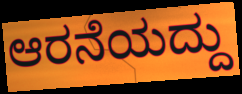
ಆರನೆಯದ್ದು